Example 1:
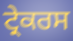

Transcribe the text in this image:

ਟ੍ਰੇਕਰਸ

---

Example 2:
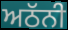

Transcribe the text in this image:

ਅਠੱਨੀ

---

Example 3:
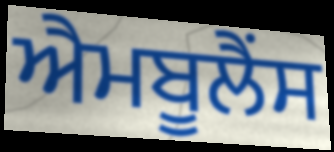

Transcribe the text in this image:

ਐਮਬੂਲੈਂਸ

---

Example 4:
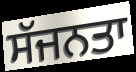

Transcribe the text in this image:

ਸੱਜਨਤਾ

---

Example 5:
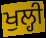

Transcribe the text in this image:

ਖੁਲ੍ਹੀ